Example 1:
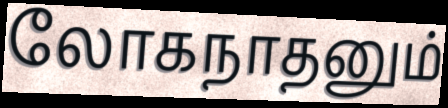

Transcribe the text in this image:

லோகநாதனும்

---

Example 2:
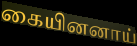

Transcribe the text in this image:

கையினனாய்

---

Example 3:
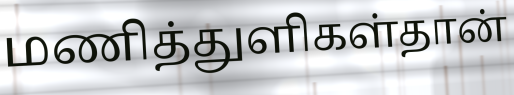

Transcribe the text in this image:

மணித்துளிகள்தான்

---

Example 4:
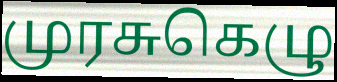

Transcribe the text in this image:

முரசுகெழு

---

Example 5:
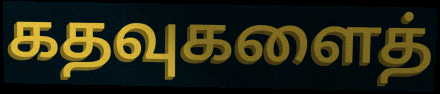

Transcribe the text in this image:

கதவுகளைத்